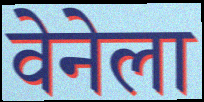
वेनेला